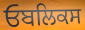
ਓਬਲਿਕਸ